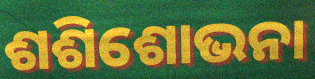
ଶଶିଶୋଭନା